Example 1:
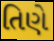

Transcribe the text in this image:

તિણે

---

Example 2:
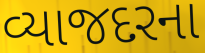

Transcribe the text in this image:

વ્યાજદરના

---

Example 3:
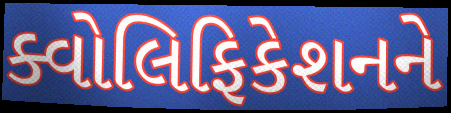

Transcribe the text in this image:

ક્વોલિફિકેશનને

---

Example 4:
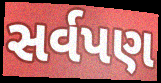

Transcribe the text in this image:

સર્વપણ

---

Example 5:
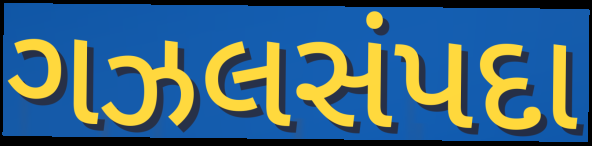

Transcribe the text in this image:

ગઝલસંપદા